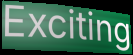
Exciting